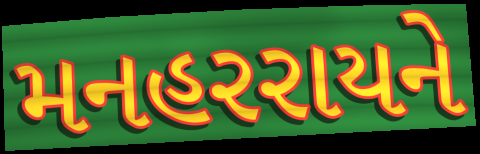
મનહરરાયને